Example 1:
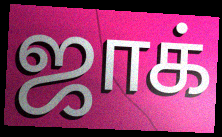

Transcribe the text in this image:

ஜாக்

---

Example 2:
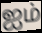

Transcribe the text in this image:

ஐம்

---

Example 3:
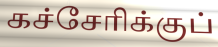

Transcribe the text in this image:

கச்சேரிக்குப்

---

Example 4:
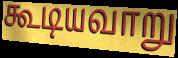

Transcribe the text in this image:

கூடியவாறு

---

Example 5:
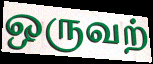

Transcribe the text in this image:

ஒருவற்